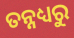
ତନ୍ନଧ୍ୟରୁ